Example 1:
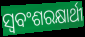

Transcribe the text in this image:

ସ୍ବବଂଶରକ୍ଷାର୍ଥୀ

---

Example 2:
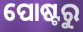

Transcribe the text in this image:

ପୋଷ୍ଟରୁ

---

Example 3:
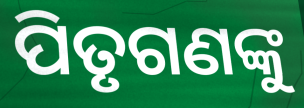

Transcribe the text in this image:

ପିତୃଗଣଙ୍କୁ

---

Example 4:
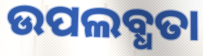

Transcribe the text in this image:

ଉପଲବ୍ଧତା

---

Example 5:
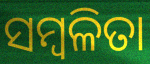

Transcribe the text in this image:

ସମ୍ବଳିତା